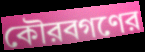
কৌরবগণের